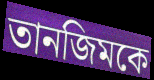
তানজিমকে